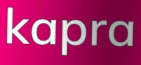
kapra